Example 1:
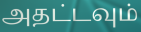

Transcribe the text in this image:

அதட்டவும்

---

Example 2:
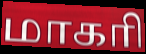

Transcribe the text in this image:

மாகரி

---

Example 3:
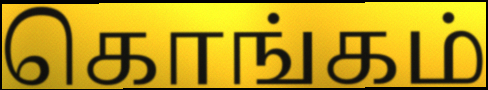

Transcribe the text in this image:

கொங்கம்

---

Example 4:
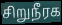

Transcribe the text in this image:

சிறுநீரக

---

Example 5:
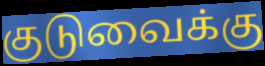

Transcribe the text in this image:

குடுவைக்கு